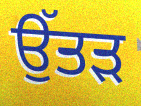
ਉੱਤੜ